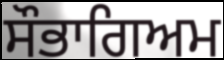
ਸੌਭਾਗਿਅਮ